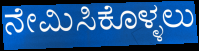
ನೇಮಿಸಿಕೊಳ್ಳಲು